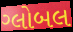
ગ્લોબલ